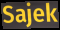
Sajek